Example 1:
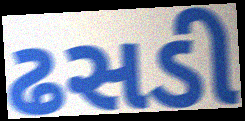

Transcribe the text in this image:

ઢસડી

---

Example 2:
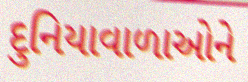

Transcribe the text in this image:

દુનિયાવાળાઓને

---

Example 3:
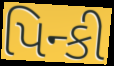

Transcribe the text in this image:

પિન્કી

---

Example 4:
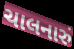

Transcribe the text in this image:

ચાલનારું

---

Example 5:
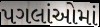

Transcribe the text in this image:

પગલાંઓમાં